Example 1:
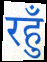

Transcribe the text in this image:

रहुँ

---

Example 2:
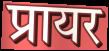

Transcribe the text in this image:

प्रायर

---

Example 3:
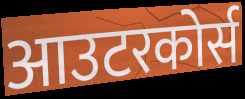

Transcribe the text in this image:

आउटरकोर्स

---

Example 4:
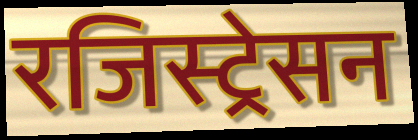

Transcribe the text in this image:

रजिस्ट्रेसन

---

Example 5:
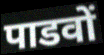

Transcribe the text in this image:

पाडवों